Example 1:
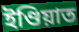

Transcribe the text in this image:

ইণ্ডিয়াত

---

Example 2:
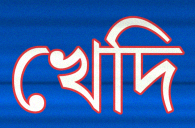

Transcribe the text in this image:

খেদি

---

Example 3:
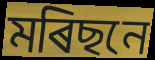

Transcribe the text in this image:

মৰিছনে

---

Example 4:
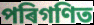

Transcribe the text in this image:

পৰিগণিত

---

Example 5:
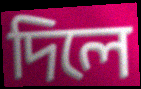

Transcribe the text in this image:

দিলে